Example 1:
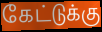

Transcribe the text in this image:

கேட்டுக்கு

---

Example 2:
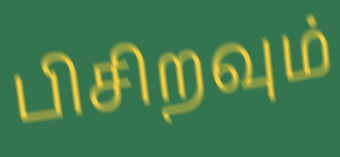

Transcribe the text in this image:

பிசிறவும்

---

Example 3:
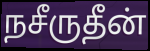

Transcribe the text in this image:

நசீருதீன்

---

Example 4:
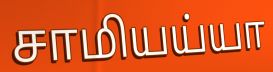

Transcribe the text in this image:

சாமியய்யா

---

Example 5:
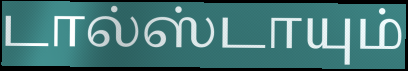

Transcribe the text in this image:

டால்ஸ்டாயும்